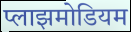
प्लाझमोडियम